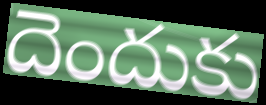
దెందుకు